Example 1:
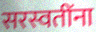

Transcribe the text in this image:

सरस्वतींना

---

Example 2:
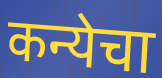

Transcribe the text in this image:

कन्येचा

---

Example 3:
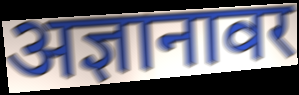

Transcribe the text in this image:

अज्ञानावर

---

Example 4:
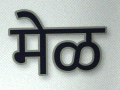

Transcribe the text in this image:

मेळ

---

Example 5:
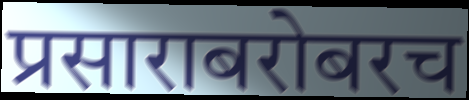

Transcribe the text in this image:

प्रसाराबरोबरच